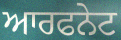
ਆਰਫਨੇਟ